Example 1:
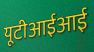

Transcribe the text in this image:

यूटीआईआई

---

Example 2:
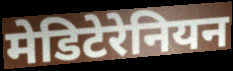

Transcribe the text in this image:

मेडिटेरेनियन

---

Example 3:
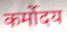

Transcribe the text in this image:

कर्मोदय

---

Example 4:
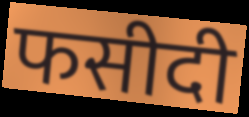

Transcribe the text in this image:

फसीदी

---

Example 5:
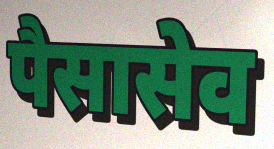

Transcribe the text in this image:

पैसासेव